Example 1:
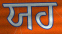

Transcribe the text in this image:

ਯਹ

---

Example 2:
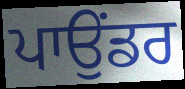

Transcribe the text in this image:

ਪਾਉਂਡਰ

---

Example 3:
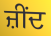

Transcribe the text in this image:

ਜ਼ੀਂਦ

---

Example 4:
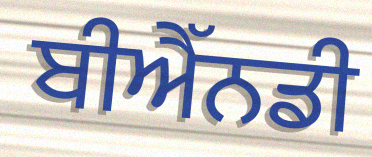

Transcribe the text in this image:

ਬੀਐੱਨਡੀ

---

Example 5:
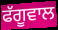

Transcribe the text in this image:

ਫੱਗੂਵਾਲ